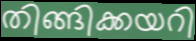
തിങ്ങിക്കയറി